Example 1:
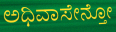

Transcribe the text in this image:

ಅಧಿವಾಸೇನ್ತೋ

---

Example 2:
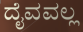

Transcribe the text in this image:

ದೈವವಲ್ಲ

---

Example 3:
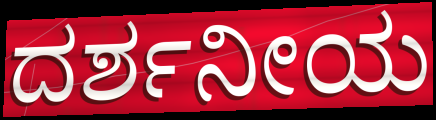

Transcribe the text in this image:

ದರ್ಶನೀಯ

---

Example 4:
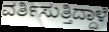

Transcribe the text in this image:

ವರ್ತಿಸುತ್ತಿದ್ದಾಳೆ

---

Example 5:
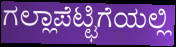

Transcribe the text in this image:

ಗಲ್ಲಾಪೆಟ್ಟಿಗೆಯಲ್ಲಿ